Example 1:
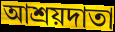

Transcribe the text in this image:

আশ্রয়দাতা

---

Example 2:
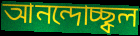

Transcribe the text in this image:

আনন্দোচ্ছ্বল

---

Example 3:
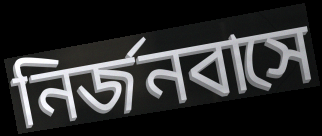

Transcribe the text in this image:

নির্জনবাসে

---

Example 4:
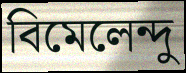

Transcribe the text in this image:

বিমেলেন্দু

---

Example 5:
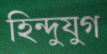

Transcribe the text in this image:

হিন্দুযুগ